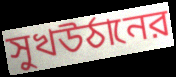
সুখউঠানের